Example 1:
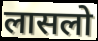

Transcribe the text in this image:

लासलो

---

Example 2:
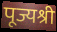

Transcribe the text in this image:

पूज्यश्री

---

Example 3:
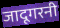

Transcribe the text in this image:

जादूगरनी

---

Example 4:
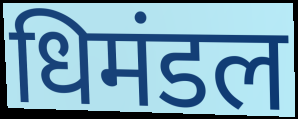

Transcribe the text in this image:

धिमंडल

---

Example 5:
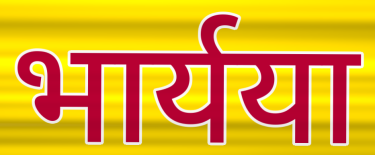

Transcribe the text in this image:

भार्यया